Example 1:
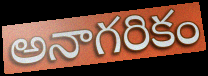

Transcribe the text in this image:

అనాగరికం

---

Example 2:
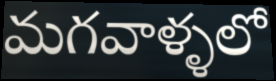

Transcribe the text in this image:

మగవాళ్ళలో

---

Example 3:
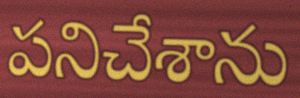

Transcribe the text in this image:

పనిచేశాను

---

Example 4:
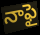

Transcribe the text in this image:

నాఫై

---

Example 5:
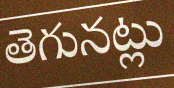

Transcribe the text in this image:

తెగునట్లు